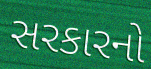
સરકારનો